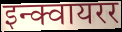
इन्क्वायरर